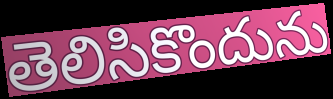
తెలిసికొందును